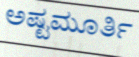
ಅಷ್ಟಮೂರ್ತಿ